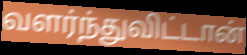
வளர்ந்துவிட்டான்